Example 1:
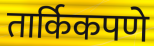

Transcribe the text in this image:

तार्किकपणे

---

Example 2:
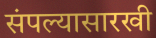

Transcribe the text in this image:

संपल्यासारखी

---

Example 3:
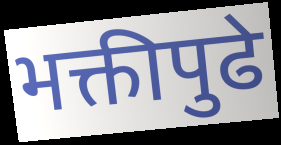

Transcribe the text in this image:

भक्तीपुढे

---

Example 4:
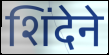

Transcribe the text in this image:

शिंदेने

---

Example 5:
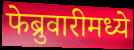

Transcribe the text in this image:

फेब्रुवारीमध्ये